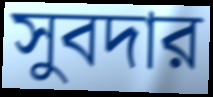
সুবদার